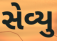
સેવ્યુ